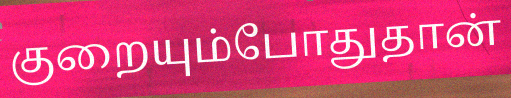
குறையும்போதுதான்